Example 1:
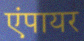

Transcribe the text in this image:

एंपायर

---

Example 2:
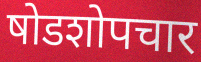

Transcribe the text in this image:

षोडशोपचार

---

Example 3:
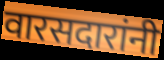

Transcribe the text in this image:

वारसदारांनी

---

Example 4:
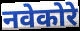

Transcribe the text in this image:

नवेकोरे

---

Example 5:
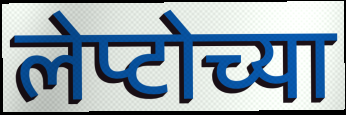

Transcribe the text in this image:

लेप्टोच्या